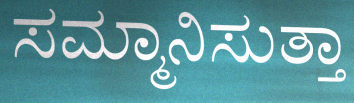
ಸಮ್ಮಾನಿಸುತ್ತಾ